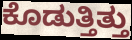
ಕೊಡುತ್ತಿತ್ತು